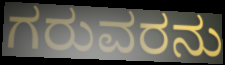
ಗರುವರನು